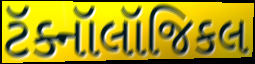
ટૅક્નૉલૉજિકલ